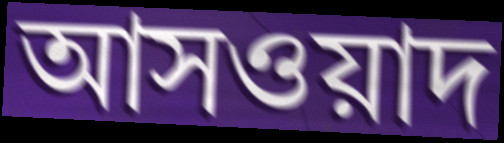
আসওয়াদ